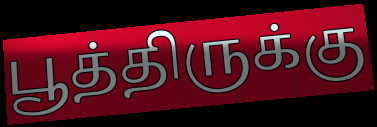
பூத்திருக்கு